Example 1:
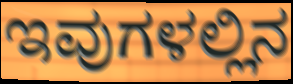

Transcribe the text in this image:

ಇವುಗಳಲ್ಲಿನ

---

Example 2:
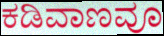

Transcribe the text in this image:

ಕಡಿವಾಣವೂ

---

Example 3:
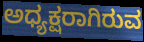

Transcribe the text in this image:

ಅಧ್ಯಕ್ಷರಾಗಿರುವ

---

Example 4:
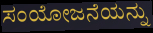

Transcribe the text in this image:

ಸಂಯೋಜನೆಯನ್ನು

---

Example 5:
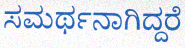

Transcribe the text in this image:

ಸಮರ್ಥನಾಗಿದ್ದರೆ